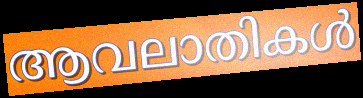
ആവലാതികൾ